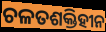
ଚଳତଶକ୍ତିହୀନ